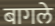
बागले